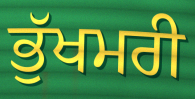
ਭੁੱਖਮਰੀ